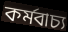
কৰ্মবাচ্য